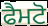
ਫੈਮਟੋ